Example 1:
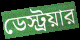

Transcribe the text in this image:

ডেস্ট্রয়ার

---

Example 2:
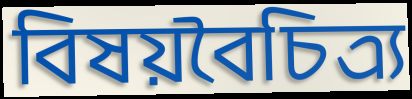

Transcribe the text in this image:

বিষয়বৈচিত্র্য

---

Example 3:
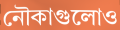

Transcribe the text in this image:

নৌকাগুলোও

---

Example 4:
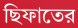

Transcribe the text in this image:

ছিফাতের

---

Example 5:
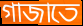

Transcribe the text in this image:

গাজাতে